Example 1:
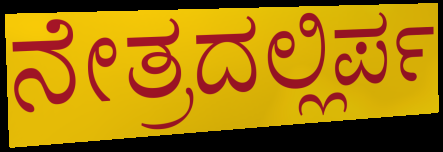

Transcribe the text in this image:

ನೇತ್ರದಲ್ಲಿರ್ಪ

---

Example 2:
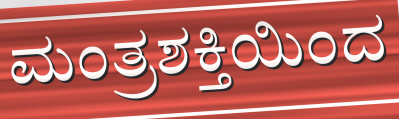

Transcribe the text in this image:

ಮಂತ್ರಶಕ್ತಿಯಿಂದ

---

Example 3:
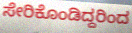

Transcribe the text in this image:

ಸೇರಿಕೊಂಡಿದ್ದರಿಂದ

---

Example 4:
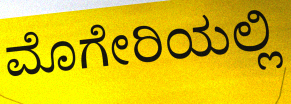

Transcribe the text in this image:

ಮೊಗೇರಿಯಲ್ಲಿ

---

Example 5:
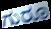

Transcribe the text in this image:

ಗುರೂ